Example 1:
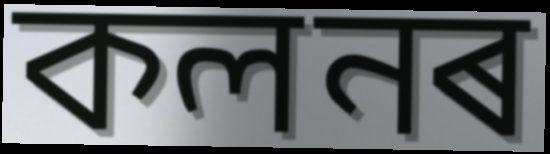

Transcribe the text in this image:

কলনৰ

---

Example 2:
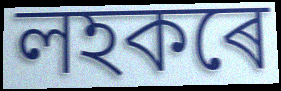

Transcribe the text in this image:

লহকৰে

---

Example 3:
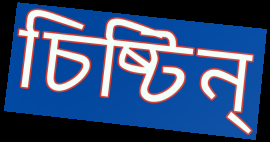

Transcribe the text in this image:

চিষ্টিন্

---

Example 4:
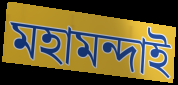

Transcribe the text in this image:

মহামন্দাই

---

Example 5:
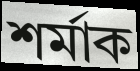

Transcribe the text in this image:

শৰ্মাক